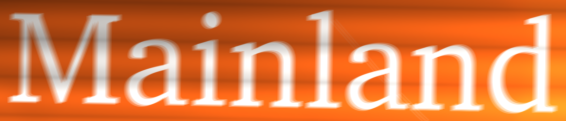
Mainland